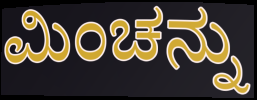
ಮಿಂಚನ್ನು